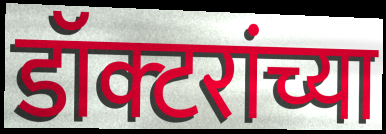
डॉक्‍टरांच्या